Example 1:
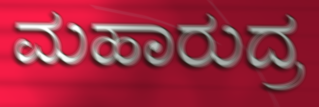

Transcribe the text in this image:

ಮಹಾರುದ್ರ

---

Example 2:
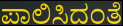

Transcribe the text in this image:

ಪಾಲಿಸಿದಂತೆ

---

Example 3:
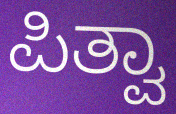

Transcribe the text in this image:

ಪಿತ್ವಾ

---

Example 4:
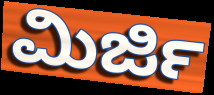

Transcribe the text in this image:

ಮಿರ್ಜಿ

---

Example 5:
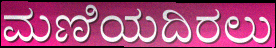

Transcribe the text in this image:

ಮಣಿಯದಿರಲು